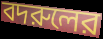
বদরুলের